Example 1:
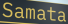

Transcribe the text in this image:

Samata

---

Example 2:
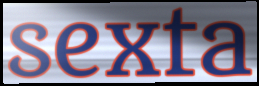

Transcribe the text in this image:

sexta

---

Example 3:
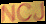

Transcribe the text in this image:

NCJ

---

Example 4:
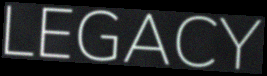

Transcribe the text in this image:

LEGACY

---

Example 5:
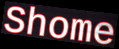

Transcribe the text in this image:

Shome